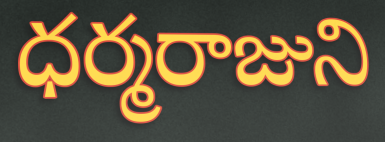
ధర్మరాజుని